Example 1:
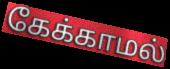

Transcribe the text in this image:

கேக்காமல்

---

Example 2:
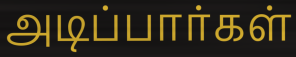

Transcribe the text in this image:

அடிப்பார்கள்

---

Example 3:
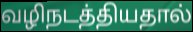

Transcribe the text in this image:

வழிநடத்தியதால்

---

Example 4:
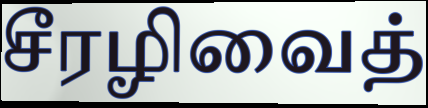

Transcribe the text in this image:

சீரழிவைத்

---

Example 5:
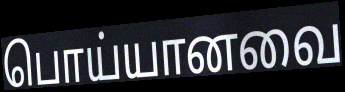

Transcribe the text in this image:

பொய்யானவை